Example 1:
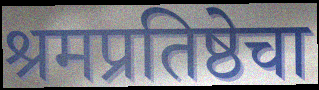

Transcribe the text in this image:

श्रमप्रतिष्ठेचा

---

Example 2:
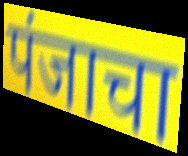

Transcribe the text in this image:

पंजाचा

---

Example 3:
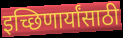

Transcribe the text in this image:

इच्छिणार्यांसाठी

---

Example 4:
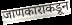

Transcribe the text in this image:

जाणकाराकडून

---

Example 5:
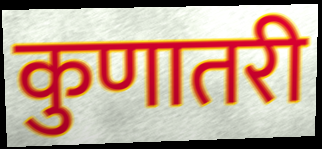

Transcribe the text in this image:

कुणातरी